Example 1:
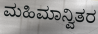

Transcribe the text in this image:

ಮಹಿಮಾನ್ವಿತರ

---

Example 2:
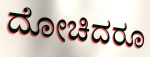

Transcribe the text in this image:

ದೋಚಿದರೂ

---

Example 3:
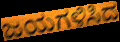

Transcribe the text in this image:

ಜಯಗಳಿಸಿದ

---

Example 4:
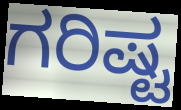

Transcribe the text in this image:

ಗರಿಷ್ಟ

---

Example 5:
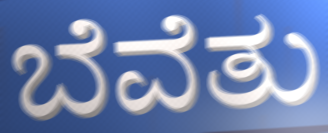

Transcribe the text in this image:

ಬೆವೆತು